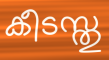
കീടസ്തു